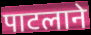
पाटलाने